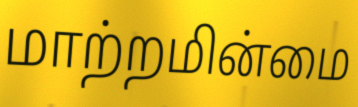
மாற்றமின்மை